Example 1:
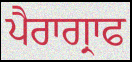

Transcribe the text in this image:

ਪੈਰਾਗ੍ਰਾਫ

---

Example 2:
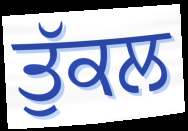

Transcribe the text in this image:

ਤੁੱਕਲ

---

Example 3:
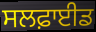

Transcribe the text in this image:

ਸਲਫ਼ਾਈਡ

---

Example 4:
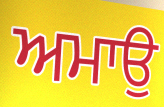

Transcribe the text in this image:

ਅਮਾਉ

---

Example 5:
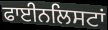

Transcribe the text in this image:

ਫਾਈਨਲਿਸਟਾਂ